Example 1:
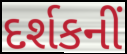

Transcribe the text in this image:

દર્શકનીં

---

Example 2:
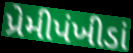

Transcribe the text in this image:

પ્રેમીપંખીડાં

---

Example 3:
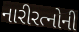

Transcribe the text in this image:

નારીરત્નોની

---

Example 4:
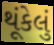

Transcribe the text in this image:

થૂંકેલું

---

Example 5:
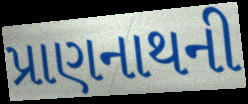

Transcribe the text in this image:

પ્રાણનાથની